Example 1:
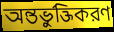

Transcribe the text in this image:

অন্তর্ভুক্তিকরণ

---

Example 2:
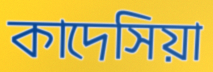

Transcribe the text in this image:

কাদেসিয়া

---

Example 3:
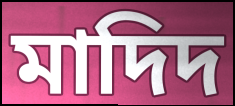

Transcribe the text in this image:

মাদিদ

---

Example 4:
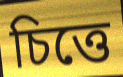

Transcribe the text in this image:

চিত্তে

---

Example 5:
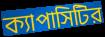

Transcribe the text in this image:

ক্যাপাসিটির